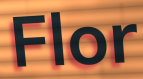
Flor